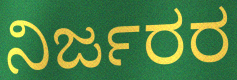
ನಿರ್ಜರರ